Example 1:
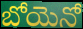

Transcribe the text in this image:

బోయెనో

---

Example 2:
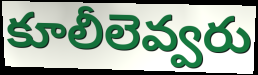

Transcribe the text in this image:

కూలీలెవ్వరు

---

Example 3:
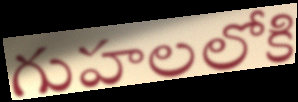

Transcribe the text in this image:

గుహలలోకి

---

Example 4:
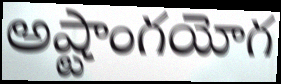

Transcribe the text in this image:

అష్టాంగయోగ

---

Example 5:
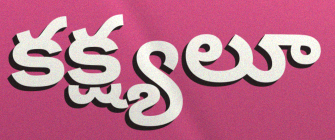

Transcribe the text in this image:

కక్ష్యలూ